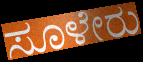
ಸೂಳೇರು